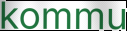
kommu